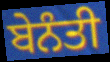
ਬੇਨੰਤੀ